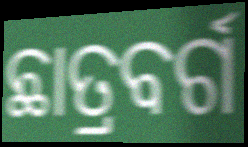
ଛାତ୍ରବର୍ଗ